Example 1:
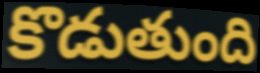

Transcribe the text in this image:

కొడుతుంది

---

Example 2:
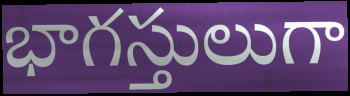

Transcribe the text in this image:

భాగస్తులుగా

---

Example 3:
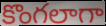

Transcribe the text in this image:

కొంగలాగా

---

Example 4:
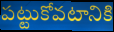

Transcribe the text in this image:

పట్టుకోవటానికి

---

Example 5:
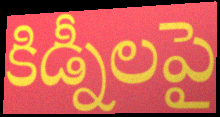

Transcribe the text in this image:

కిడ్నీలపై